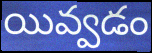
యివ్వడం